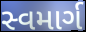
સ્વમાર્ગ